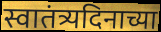
स्वातंत्र्यदिनाच्या